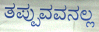
ತಪ್ಪುವವನಲ್ಲ